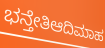
ಭನ್ತೇತಿಆದಿಮಾಹ